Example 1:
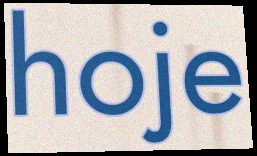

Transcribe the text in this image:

hoje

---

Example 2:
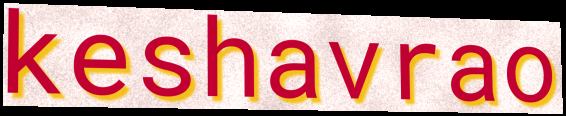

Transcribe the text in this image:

keshavrao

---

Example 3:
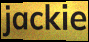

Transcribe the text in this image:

jackie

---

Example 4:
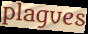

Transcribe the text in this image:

plagues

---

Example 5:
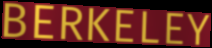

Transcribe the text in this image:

BERKELEY